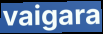
vaigara